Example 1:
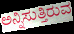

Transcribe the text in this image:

ಅನ್ನಿಸುತ್ತಿರುವ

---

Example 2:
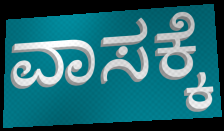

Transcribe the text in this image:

ವಾಸಕ್ಕೆ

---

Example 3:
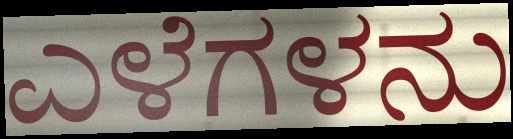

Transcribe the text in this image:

ಎಳೆಗಳನು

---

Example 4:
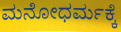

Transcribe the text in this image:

ಮನೋಧರ್ಮಕ್ಕೆ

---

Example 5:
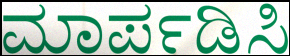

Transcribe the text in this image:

ಮಾರ್ಪಡಿಸಿ